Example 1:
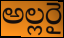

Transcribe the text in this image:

అల్లరై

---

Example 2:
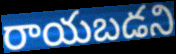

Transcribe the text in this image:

రాయబడని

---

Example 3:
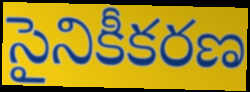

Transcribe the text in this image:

సైనికీకరణ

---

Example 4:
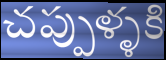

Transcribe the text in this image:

చప్పుళ్ళకి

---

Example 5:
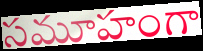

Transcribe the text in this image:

సమూహంగా